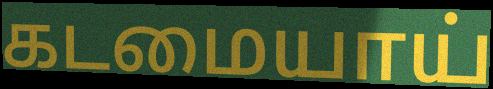
கடமையாய்